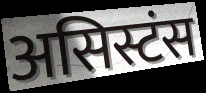
असिस्टंस